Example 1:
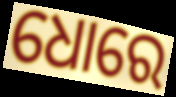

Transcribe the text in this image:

ଧୋରେ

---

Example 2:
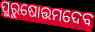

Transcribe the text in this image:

ପୁରୁଷୋତ୍ତମଦେବ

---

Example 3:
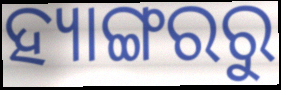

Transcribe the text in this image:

ହ୍ୟାଙ୍ଗରରୁ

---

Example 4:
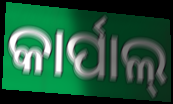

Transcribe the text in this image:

କାର୍ପାଲ୍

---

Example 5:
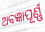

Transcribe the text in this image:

ଅବଜ୍ଞାପୂର୍ଣ୍ଣ